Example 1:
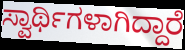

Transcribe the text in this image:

ಸ್ವಾರ್ಥಿಗಳಾಗಿದ್ದಾರೆ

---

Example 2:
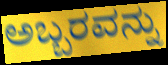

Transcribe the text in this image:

ಅಬ್ಬರವನ್ನು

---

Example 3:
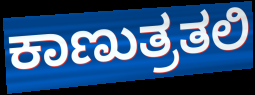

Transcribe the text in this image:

ಕಾಣುತ್ರತಲಿ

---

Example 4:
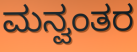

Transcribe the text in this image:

ಮನ್ವಂತರ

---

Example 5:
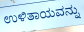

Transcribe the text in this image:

ಉಳಿತಾಯವನ್ನು